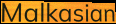
Malkasian